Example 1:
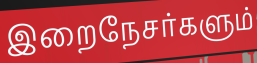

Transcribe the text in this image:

இறைநேசர்களும்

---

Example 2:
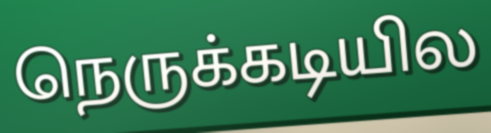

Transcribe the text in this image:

நெருக்கடியில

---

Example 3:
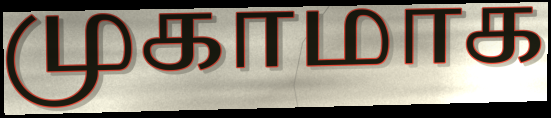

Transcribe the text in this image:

முகாமாக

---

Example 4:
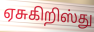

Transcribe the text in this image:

ஏசுகிறிஸ்து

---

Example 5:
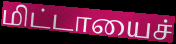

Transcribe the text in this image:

மிட்டாயைச்